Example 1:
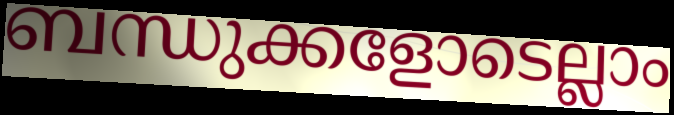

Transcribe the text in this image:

ബന്ധുക്കളോടെല്ലാം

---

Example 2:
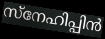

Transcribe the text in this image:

സ്നേഹിപ്പിൻ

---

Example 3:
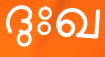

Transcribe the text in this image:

ദുഃഖ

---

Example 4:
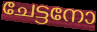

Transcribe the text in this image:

ചേട്ടനോ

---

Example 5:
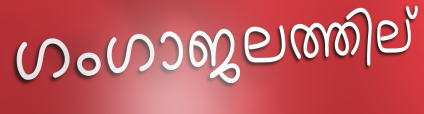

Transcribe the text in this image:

ഗംഗാജലത്തില്